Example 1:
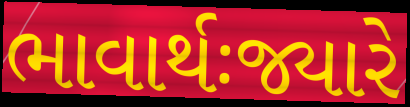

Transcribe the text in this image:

ભાવાર્થઃજ્યારે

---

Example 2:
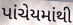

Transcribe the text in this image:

પાંચેયમાંથી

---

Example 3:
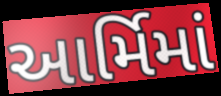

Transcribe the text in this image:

આર્મિમાં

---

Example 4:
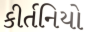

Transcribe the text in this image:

કીર્તનિયો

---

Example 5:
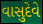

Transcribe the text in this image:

વાસુદેવે